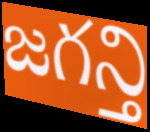
జగన్తి